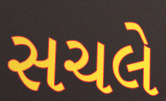
સચલે